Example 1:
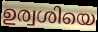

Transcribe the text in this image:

ഉര്വശിയെ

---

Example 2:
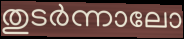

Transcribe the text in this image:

തുടർന്നാലോ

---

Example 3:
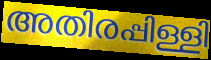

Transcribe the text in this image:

അതിരപ്പിള്ളി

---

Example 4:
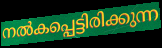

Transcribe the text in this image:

നൽകപ്പെട്ടിരിക്കുന്ന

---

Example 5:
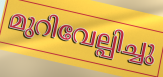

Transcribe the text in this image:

മുറിവേല്പിച്ചു